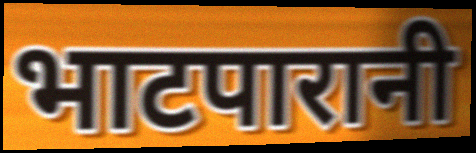
भाटपारानी